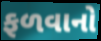
ફળવાનો